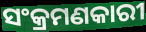
ସଂକ୍ରମଣକାରୀ